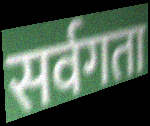
सर्वगता